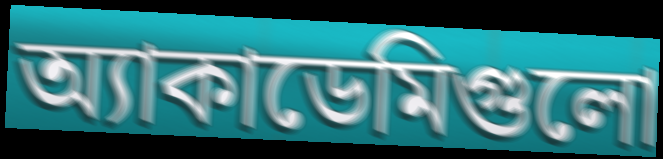
অ্যাকাডেমিগুলো